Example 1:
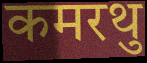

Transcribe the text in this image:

कमरथु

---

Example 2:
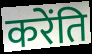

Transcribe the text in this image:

करेंति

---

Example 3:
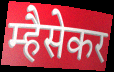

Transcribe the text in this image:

म्हैसेकर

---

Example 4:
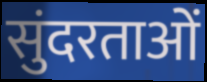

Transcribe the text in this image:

सुंदरताओं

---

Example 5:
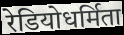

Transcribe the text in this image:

रेडियोधर्मिता